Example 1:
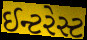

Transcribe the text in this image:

ઈન્ટરેસ્ટ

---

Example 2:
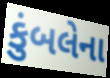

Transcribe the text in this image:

કુંબલેના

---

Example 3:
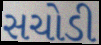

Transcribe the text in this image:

સચોડી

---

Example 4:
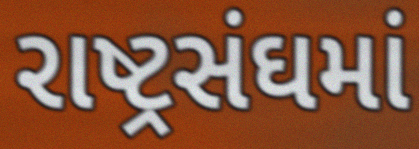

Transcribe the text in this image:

રાષ્ટ્રસંઘમાં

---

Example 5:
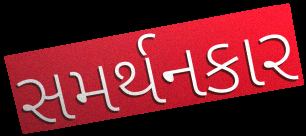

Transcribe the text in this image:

સમર્થનકાર